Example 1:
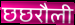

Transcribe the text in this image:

छछरौली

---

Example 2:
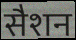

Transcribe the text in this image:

सैशन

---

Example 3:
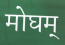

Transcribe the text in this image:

मोघम्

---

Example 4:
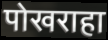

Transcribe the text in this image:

पोखराहा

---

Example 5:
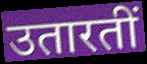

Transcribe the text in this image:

उतारतीं